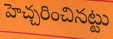
హెచ్చరించినట్టు